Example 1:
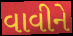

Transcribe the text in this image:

વાવીને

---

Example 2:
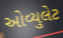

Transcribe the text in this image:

ઓવ્યુલેટ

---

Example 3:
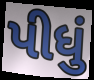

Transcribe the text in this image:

પીધું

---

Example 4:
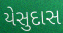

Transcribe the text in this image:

યેસુદાસ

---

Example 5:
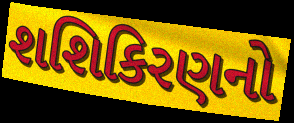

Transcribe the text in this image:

શશિકિરણનો